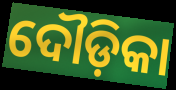
ଦୌଡ଼ିକା